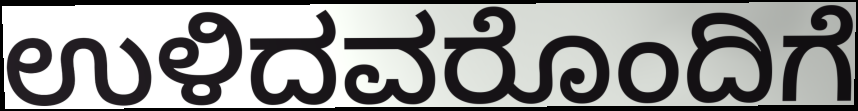
ಉಳಿದವರೊಂದಿಗೆ